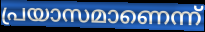
പ്രയാസമാണെന്ന്